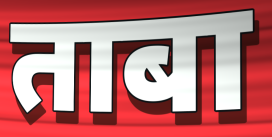
ताबा